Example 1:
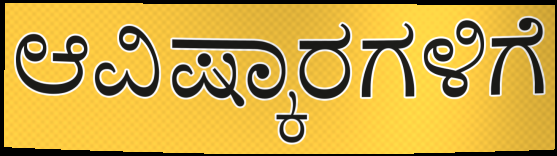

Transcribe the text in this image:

ಆವಿಷ್ಕಾರಗಳಿಗೆ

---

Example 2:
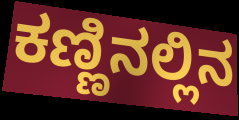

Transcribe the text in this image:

ಕಣ್ಣಿನಲ್ಲಿನ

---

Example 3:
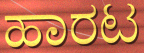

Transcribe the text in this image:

ಹಾರಟ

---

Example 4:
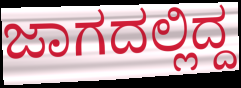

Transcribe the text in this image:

ಜಾಗದಲ್ಲಿದ್ದ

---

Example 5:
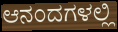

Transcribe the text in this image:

ಆನಂದಗಳಲ್ಲಿ